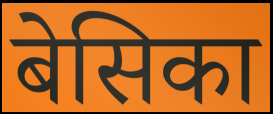
बेसिका